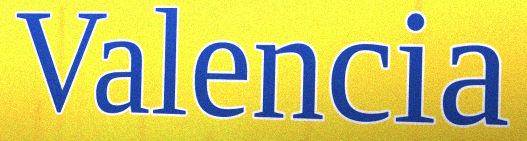
Valencia